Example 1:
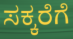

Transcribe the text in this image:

ಸಕ್ಕರೆಗೆ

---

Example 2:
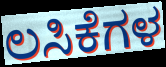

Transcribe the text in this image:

ಲಸಿಕೆಗಳ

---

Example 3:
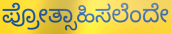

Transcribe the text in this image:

ಪ್ರೋತ್ಸಾಹಿಸಲೆಂದೇ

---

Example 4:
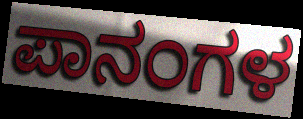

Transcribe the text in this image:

ಪಾನಂಗಳ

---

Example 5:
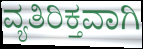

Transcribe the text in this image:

ವ್ಯತಿರಿಕ್ತವಾಗಿ